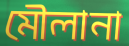
মৌলানা